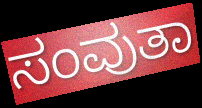
ಸಂವುತಾ